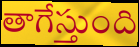
తాగేస్తుంది